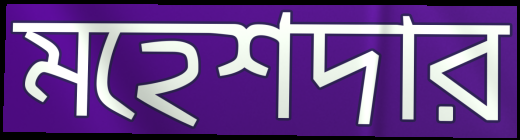
মহেশদার